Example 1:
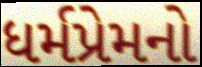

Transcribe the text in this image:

ધર્મપ્રેમનો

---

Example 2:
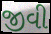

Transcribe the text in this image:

જીવી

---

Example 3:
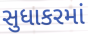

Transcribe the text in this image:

સુધાકરમાં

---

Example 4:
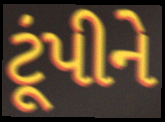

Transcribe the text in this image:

ટૂંપીને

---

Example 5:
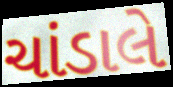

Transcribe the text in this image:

ચાંડાલે